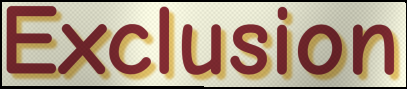
Exclusion